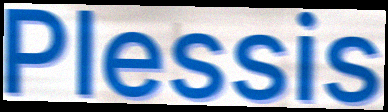
Plessis